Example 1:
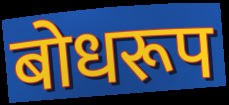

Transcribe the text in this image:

बोधरूप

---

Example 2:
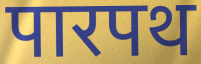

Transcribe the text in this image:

पारपथ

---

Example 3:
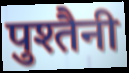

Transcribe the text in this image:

पुश्‍तैनी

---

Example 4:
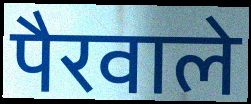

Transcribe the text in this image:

पैरवाले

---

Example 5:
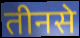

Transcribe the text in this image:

तीनसे